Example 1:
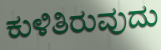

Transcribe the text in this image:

ಕುಳಿತಿರುವುದು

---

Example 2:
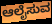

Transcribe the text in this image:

ಆಲೈಸುವ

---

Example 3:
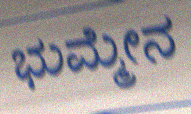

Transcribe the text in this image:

ಭುಮ್ಮೇನ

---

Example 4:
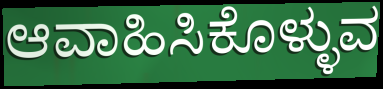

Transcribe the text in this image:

ಆವಾಹಿಸಿಕೊಳ್ಳುವ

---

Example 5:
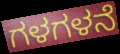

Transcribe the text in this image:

ಗಳಗಳನೆ